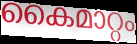
കൈമാറ്റം